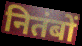
नितंबों